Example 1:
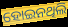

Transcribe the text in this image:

ହୋଇନଥିଲି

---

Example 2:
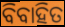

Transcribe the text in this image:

ବିବାହିତ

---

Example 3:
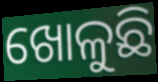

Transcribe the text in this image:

ଖୋଳୁଛି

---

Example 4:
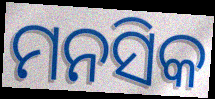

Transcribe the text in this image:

ମନସିକ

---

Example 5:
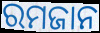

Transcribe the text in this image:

ରମଜାନ